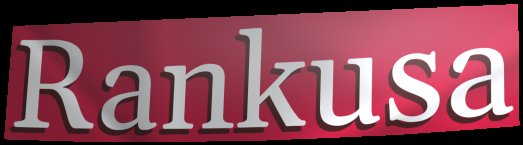
Rankusa